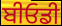
ਬੀਓਡੀ